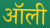
ऑली